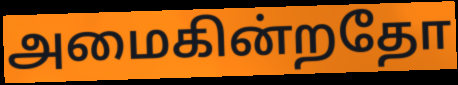
அமைகின்றதோ